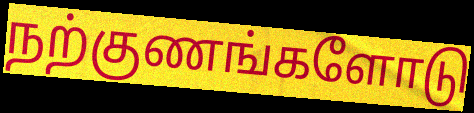
நற்குணங்களோடு